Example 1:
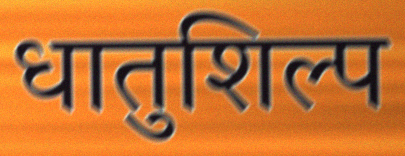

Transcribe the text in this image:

धातुशिल्प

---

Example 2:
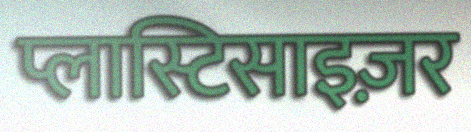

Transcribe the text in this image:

प्लास्टिसाइज़र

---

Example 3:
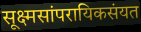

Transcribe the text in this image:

सूक्ष्मसांपरायिकसंयत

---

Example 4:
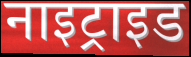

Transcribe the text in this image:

नाइट्राइड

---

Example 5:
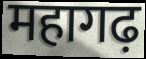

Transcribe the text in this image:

महागढ़